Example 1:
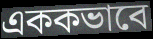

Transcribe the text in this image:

এককভাবে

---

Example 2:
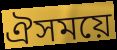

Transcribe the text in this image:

ঐসময়ে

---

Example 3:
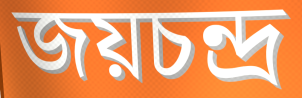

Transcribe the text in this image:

জয়চন্দ্র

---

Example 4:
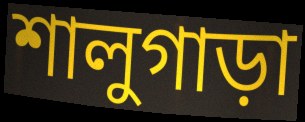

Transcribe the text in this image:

শালুগাড়া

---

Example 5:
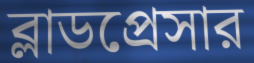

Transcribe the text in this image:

ব্লাডপ্রেসার